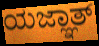
ಯಜ್ಞಾತ್